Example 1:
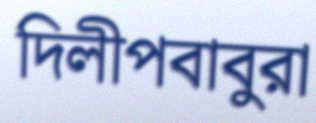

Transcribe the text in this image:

দিলীপবাবুরা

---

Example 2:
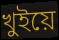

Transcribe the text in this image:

খুইয়ে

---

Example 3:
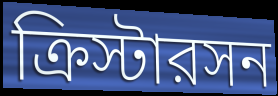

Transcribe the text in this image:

ক্রিস্টারসন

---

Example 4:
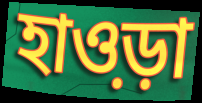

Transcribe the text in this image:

হাও়ড়া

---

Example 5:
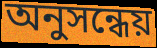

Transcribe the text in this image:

অনুসন্ধেয়